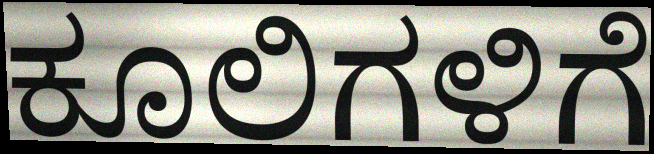
ಕೂಲಿಗಳಿಗೆ